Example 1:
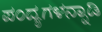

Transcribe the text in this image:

ಪಂದ್ಯಗಳನ್ನಾಡಿ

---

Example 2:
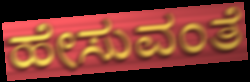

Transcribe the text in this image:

ಹೇಸುವಂತೆ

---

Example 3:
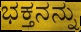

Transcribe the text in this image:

ಭಕ್ತನನ್ನು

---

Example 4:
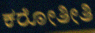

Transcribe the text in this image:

ಕರೋತೀತಿ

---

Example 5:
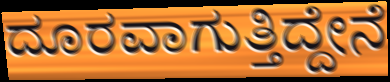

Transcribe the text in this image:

ದೂರವಾಗುತ್ತಿದ್ದೇನೆ